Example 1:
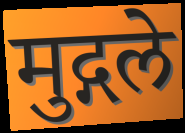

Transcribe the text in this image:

मुद्गले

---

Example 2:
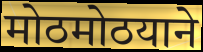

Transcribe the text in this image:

मोठमोठयाने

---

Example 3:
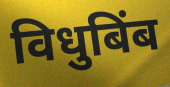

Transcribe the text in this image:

विधुबिंब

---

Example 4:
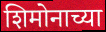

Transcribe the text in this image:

शिमोनाच्या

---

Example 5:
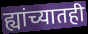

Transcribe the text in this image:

ह्यांच्यातही